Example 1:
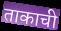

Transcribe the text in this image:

ताकाची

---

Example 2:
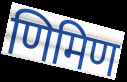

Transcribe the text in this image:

णिमिण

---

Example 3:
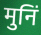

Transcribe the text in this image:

मुनिं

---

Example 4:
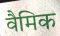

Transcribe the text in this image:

वैमिक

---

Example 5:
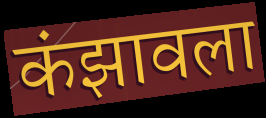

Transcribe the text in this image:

कंझावला